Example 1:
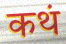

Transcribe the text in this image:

कथं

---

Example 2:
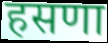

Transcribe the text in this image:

हसणा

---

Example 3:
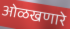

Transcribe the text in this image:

ओळखणारे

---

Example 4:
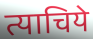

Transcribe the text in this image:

त्याचिये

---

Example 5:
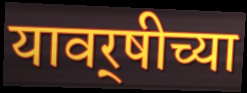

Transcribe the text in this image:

यावर्षीच्या